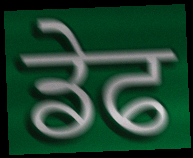
ਡੇਫ